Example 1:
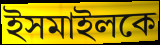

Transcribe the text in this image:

ইসমাইলকে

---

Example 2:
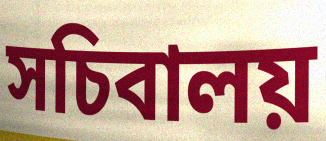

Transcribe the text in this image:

সচিবালয়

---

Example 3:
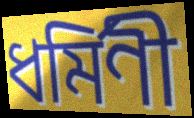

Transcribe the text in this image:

ধর্মিণী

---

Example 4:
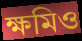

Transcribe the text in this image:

ক্ষমিও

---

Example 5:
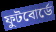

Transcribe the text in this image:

ফুটবোর্ডে